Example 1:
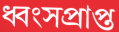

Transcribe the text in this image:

ধ্বংসপ্ৰাপ্ত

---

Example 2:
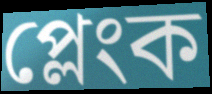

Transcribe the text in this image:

প্লেংক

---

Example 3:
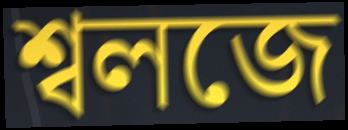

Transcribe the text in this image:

শ্বলজে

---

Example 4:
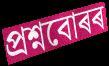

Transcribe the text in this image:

প্ৰশ্নবোৰৰ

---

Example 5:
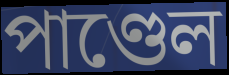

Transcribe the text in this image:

পাণ্ডেল